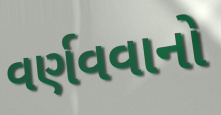
વર્ણવવાનો